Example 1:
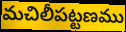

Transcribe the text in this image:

మచిలీపట్టణము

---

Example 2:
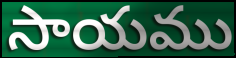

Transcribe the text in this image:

సాయము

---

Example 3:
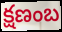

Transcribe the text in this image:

క్షణంబ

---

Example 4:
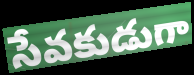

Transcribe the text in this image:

సేవకుడుగా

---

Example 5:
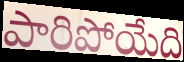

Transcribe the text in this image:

పారిపోయేది